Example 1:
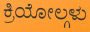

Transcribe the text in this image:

ಕ್ರಿಯೋಲ್ಗಳು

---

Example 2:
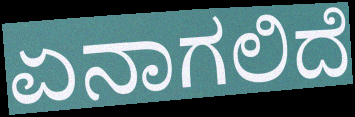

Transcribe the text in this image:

ಏನಾಗಲಿದೆ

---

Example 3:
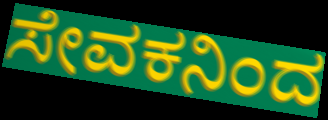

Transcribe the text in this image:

ಸೇವಕನಿಂದ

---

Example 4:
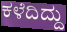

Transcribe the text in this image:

ಕಳೆದಿದ್ದು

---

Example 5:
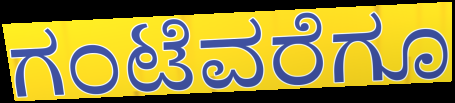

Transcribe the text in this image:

ಗಂಟೆವರೆಗೂ